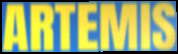
ARTEMIS